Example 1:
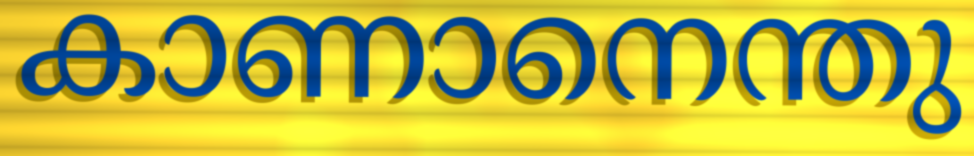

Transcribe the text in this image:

കാണാനെന്തു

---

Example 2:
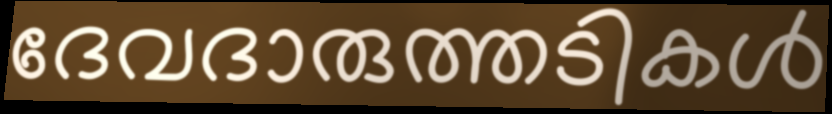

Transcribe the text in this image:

ദേവദാരുത്തടികൾ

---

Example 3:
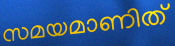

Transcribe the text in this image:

സമയമാണിത്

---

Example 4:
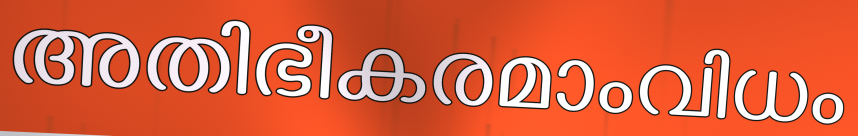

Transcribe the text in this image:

അതിഭീകരമാംവിധം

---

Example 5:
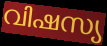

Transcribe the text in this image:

വിഷസ്യ